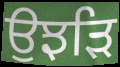
ਉਝੜਿ